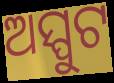
ଅସ୍ପୁଟ